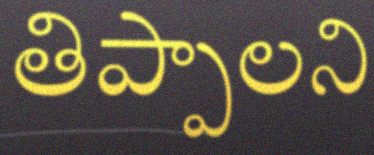
తిప్పాలని